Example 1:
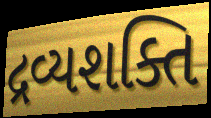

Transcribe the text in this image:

દ્રવ્યશક્તિ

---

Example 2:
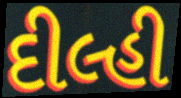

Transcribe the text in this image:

દીલ્હી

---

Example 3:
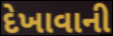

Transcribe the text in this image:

દેખાવાની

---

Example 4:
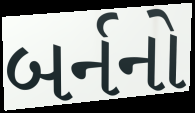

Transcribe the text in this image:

બર્નનો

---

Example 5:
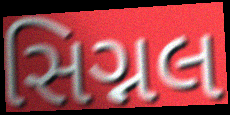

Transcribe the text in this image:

સિગ્નલ